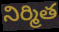
నిర్మిత